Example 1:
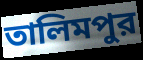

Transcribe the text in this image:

তালিমপুর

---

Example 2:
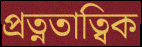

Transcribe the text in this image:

প্রত্নতাত্বিক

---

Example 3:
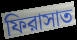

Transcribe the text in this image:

ফিরাসাত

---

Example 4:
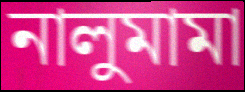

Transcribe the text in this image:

নালুমামা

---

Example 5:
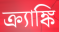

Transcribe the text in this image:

ক্র্যাঙ্কি